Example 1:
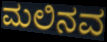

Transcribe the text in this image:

ಮಲಿನವ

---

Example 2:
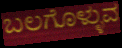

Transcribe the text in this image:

ಬಲಗೊಳ್ಳುವ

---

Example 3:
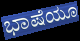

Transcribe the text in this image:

ಭಾಷೆಯೂ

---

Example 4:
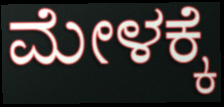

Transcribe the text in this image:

ಮೇಳಕ್ಕೆ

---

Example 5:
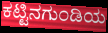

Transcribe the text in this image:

ಕಟ್ಟಿನಗುಂಡಿಯ